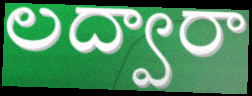
లద్వారా